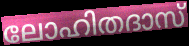
ലോഹിതദാസ്